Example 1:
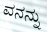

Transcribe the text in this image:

ವನನ್ನು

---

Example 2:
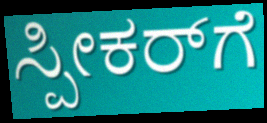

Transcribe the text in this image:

ಸ್ಪೀಕರ್‌ಗೆ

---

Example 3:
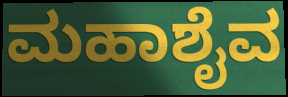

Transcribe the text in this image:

ಮಹಾಶೈವ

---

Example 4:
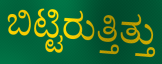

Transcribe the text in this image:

ಬಿಟ್ಟಿರುತ್ತಿತ್ತು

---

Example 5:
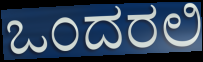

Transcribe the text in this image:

ಒಂದರಲಿ